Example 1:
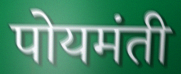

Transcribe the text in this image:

पोयमंती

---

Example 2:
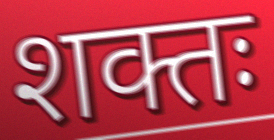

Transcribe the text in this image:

शक्तः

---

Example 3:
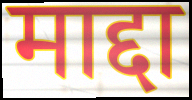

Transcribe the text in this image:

माद्दा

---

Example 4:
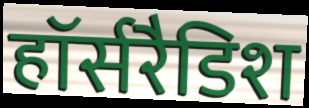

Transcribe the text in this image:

हॉर्सरैडिश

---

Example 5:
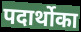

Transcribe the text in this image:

पदार्थोका